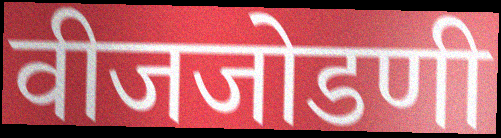
वीजजोडणी